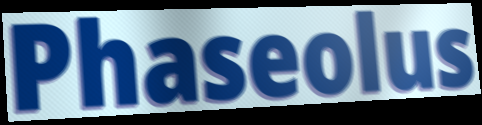
Phaseolus